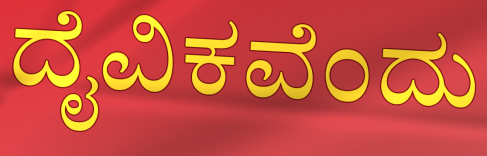
ದೈವಿಕವೆಂದು